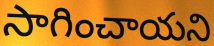
సాగించాయని